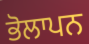
ਭੋਲਾਪਨ